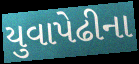
યુવાપેઢીના